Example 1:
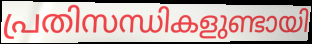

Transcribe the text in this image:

പ്രതിസന്ധികളുണ്ടായി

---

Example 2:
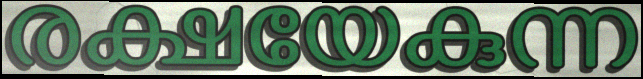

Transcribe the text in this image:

രക്ഷയേകുന്ന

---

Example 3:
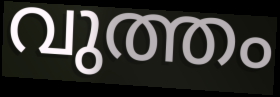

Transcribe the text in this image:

വുത്തം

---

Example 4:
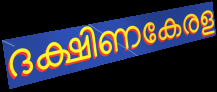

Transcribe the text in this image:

ദക്ഷിണകേരള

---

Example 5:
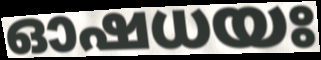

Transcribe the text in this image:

ഓഷധയഃ